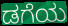
ಡಗೆಯ